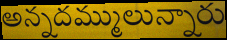
అన్నదమ్ములున్నారు